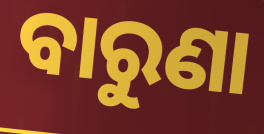
ବାରୁଣା